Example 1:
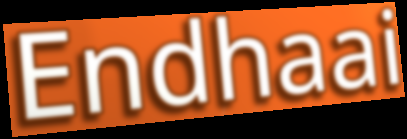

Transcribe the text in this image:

Endhaai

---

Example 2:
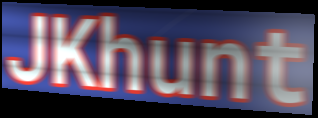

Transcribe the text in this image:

JKhunt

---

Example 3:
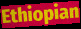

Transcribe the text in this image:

Ethiopian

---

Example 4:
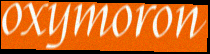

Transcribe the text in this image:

oxymoron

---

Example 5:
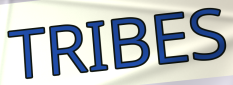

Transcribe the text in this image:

TRIBES